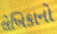
લેખિકાનો